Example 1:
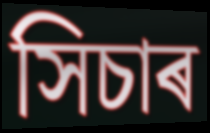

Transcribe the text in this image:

সিচাৰ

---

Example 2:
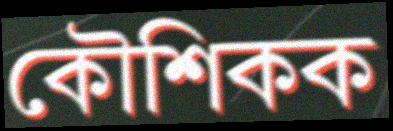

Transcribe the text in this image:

কৌশিকক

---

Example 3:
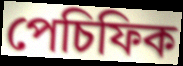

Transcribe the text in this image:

পেচিফিক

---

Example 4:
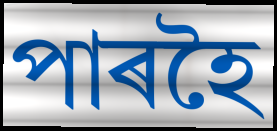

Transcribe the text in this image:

পাৰহৈ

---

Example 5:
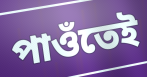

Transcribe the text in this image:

পাওঁতেই